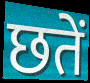
छतें